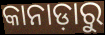
କାନାଡ଼ାରୁ